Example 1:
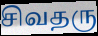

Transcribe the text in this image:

சிவதரு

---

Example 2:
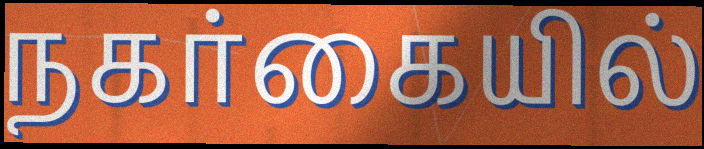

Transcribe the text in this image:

நகர்கையில்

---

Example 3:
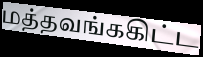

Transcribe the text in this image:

மத்தவங்ககிட்ட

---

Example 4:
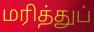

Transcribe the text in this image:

மரித்துப்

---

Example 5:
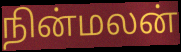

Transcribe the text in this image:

நின்மலன்